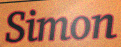
Simon